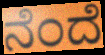
ನೆಂದೆ